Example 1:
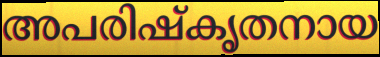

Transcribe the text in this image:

അപരിഷ്കൃതനായ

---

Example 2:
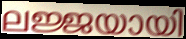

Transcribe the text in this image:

ലജ്ജയായി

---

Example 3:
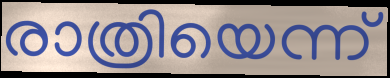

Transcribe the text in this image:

രാത്രിയെന്ന്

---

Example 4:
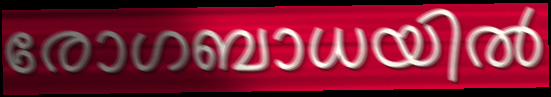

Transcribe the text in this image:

രോഗബാധയിൽ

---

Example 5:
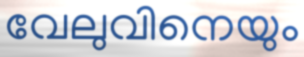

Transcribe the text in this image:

വേലുവിനെയും